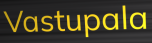
Vastupala